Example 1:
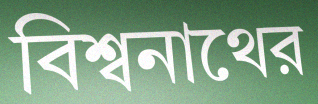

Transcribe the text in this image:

বিশ্বনাথের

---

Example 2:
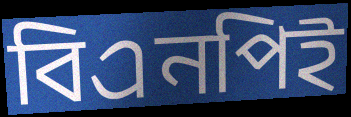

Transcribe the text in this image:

বিএনপিই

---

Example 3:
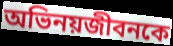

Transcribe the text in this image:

অভিনয়জীবনকে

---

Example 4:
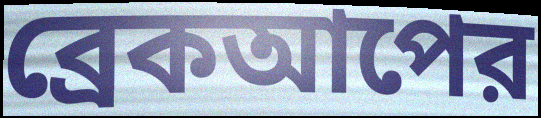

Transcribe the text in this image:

ব্রেকআপের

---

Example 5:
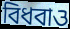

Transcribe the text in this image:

বিধবাও